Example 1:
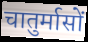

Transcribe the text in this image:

चातुर्मासों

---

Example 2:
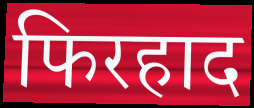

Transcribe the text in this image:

फिरहाद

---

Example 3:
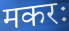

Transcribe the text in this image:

मकरः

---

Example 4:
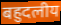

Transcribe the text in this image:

बहुदलीय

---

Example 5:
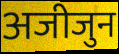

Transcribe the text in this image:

अजीजुन